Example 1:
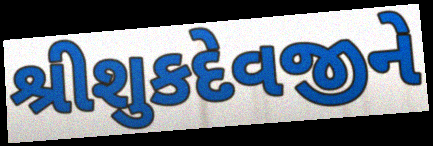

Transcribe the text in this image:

શ્રીશુકદેવજીને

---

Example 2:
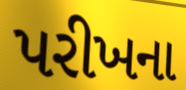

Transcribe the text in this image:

પરીખના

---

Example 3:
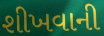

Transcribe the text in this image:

શીખવાની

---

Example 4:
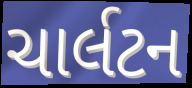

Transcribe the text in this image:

ચાર્લટન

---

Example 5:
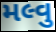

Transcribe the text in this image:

મલ્વુ